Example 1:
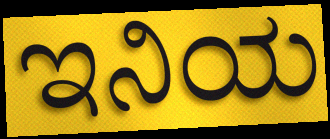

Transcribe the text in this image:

ಇನಿಯ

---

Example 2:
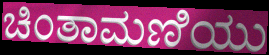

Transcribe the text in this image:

ಚಿಂತಾಮಣಿಯು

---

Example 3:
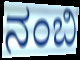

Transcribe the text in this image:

ನಂಬಿ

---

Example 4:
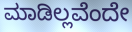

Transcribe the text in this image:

ಮಾಡಿಲ್ಲವೆಂದೇ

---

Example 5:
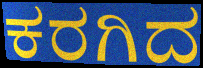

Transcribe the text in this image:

ಕರಗಿದ